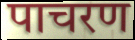
पाचरण